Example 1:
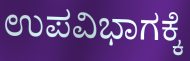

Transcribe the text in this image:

ಉಪವಿಭಾಗಕ್ಕೆ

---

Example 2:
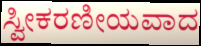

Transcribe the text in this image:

ಸ್ವೀಕರಣೀಯವಾದ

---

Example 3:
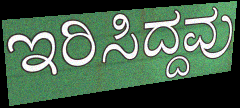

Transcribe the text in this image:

ಇರಿಸಿದ್ದವು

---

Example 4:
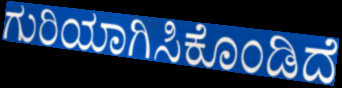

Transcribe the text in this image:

ಗುರಿಯಾಗಿಸಿಕೊಂಡಿದೆ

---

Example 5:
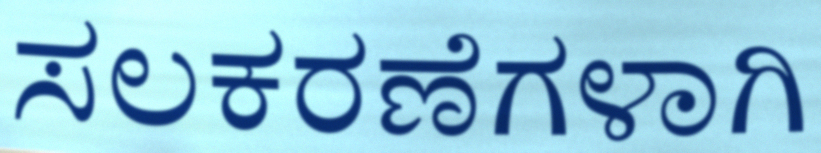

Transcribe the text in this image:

ಸಲಕರಣೆಗಳಾಗಿ